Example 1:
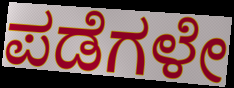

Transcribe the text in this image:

ಪಡೆಗಳೇ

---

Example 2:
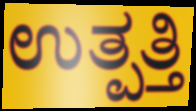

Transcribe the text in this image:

ಉತ್ಪತ್ತಿ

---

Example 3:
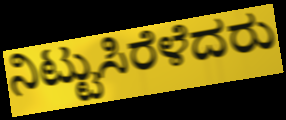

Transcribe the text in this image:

ನಿಟ್ಟುಸಿರೆಳೆದರು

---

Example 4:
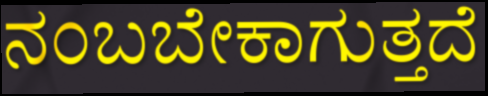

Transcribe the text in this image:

ನಂಬಬೇಕಾಗುತ್ತದೆ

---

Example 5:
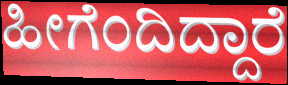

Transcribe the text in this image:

ಹೀಗೆಂದಿದ್ದಾರೆ